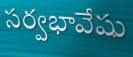
సర్వభావేషు